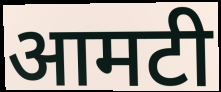
आमटी